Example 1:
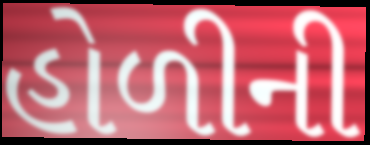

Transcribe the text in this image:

હોળીની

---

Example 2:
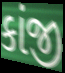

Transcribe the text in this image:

કાંજી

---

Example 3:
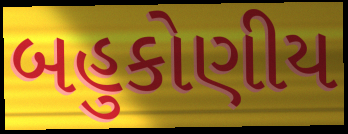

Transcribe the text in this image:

બહુકોણીય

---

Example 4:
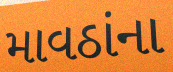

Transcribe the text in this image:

માવઠાંના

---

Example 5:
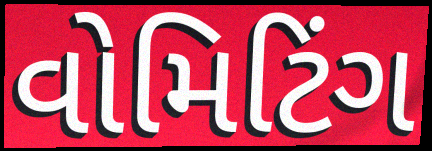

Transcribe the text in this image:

વોમિટિંગ